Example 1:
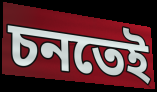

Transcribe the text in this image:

চনতেই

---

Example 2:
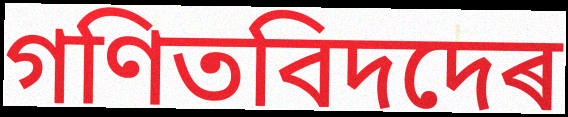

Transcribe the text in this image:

গণিতবিদদেৰ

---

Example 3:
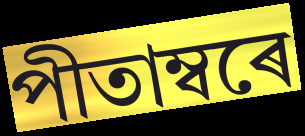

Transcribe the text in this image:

পীতাম্বৰে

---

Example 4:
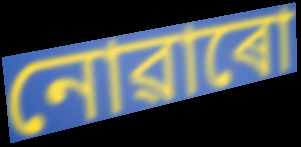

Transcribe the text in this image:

নোৱাৰো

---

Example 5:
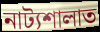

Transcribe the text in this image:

নাট্যশালাত